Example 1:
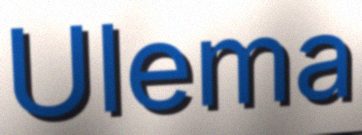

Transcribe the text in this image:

Ulema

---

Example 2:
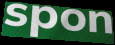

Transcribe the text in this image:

spon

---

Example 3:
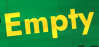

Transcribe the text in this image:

Empty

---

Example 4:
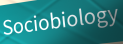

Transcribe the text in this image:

Sociobiology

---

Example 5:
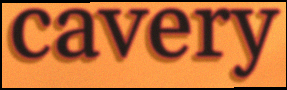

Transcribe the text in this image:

cavery